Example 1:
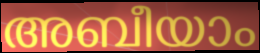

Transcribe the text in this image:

അബീയാം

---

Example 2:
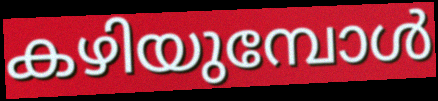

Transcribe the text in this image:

കഴിയുമ്പോൾ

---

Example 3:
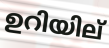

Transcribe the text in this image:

ഉറിയില്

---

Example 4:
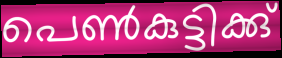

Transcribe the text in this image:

പെൺകുട്ടിക്കു്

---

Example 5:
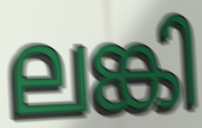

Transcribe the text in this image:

ലങ്കി